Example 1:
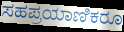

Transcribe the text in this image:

ಸಹಪ್ರಯಾಣಿಕರೂ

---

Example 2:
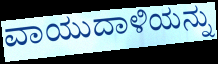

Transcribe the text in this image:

ವಾಯುದಾಳಿಯನ್ನು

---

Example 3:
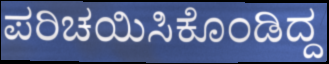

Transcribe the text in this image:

ಪರಿಚಯಿಸಿಕೊಂಡಿದ್ದ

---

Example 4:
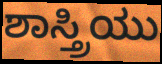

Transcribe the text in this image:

ಶಾಸ್ತ್ರಿಯು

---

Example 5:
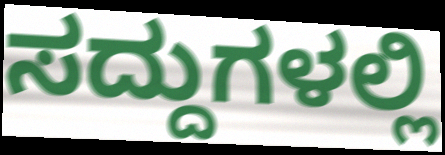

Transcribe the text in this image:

ಸದ್ದುಗಳಲ್ಲಿ